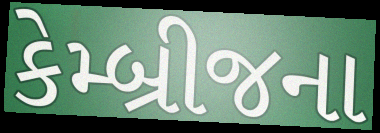
કેમ્બ્રીજના